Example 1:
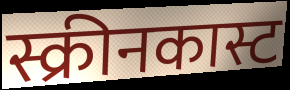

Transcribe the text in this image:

स्क्रीनकास्ट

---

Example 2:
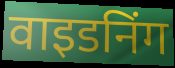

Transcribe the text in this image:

वाइडनिंग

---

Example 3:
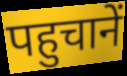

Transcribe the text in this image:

पहुचानें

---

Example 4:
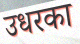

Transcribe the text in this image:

उधरका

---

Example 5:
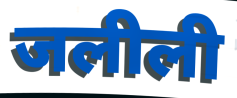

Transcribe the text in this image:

जलीली